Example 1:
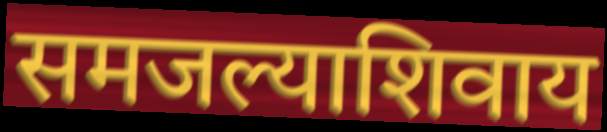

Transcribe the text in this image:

समजल्याशिवाय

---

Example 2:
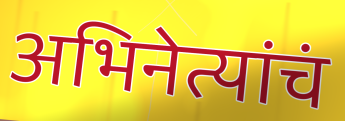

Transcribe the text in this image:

अभिनेत्यांचं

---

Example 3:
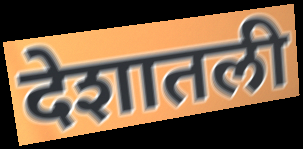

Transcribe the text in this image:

देशातली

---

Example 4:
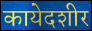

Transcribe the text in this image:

कायेदशीर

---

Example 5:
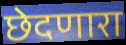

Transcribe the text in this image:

छेदणारा